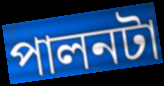
পালনটা